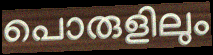
പൊരുളിലും